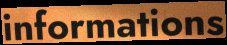
informations